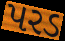
પરડ